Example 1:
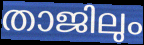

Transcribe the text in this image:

താജിലും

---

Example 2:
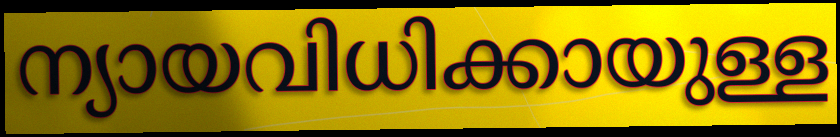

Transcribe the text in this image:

ന്യായവിധിക്കായുള്ള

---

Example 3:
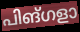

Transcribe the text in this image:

പിങ്ഗളാ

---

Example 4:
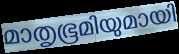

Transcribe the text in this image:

മാതൃഭൂമിയുമായി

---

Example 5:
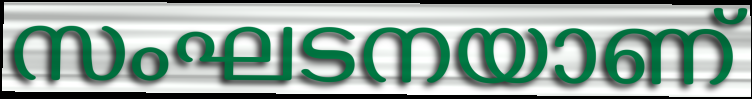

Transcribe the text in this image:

സംഘടനയാണ്